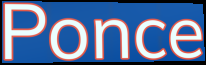
Ponce